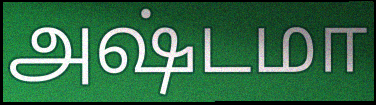
அஷ்டமா